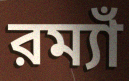
রম্যাঁ